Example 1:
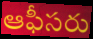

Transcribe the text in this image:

ఆఫీసరు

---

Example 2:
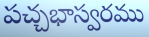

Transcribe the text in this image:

పచ్చభాస్వరము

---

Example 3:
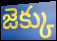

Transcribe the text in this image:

జెక్కు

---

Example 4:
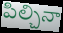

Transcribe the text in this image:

పిల్చినా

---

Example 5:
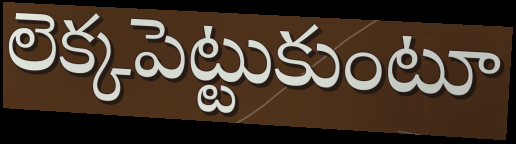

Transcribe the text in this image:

లెక్కపెట్టుకుంటూ